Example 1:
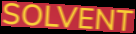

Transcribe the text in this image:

SOLVENT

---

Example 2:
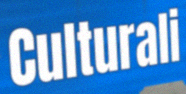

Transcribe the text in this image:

Culturali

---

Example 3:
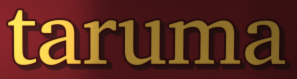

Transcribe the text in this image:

taruma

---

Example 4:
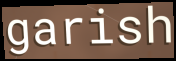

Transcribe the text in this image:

garish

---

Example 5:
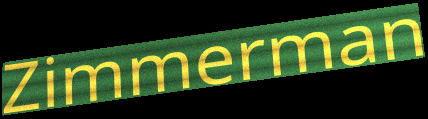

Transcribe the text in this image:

Zimmerman